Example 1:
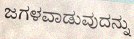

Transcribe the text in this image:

ಜಗಳವಾಡುವುದನ್ನು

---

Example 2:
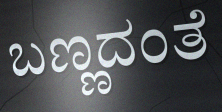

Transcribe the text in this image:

ಬಣ್ಣದಂತೆ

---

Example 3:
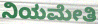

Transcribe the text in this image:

ನಿಯಮೇತಿ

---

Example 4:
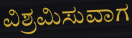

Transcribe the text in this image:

ವಿಶ್ರಮಿಸುವಾಗ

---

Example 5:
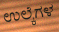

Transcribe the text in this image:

ಉಲ್ಕೆಗಳ